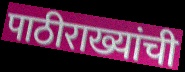
पाठीराख्यांची